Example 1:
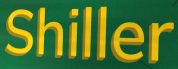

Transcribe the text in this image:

Shiller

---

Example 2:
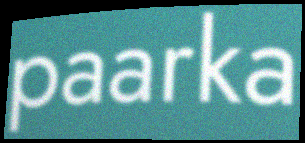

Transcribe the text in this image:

paarka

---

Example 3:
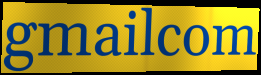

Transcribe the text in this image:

gmailcom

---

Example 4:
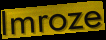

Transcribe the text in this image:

Imroze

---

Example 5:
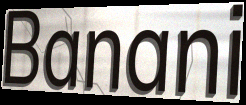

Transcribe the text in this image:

Banani